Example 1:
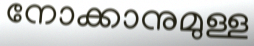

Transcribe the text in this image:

നോക്കാനുമുള്ള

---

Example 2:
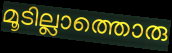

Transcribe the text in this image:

മൂടില്ലാത്തൊരു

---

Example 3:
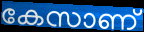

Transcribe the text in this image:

കേസാണ്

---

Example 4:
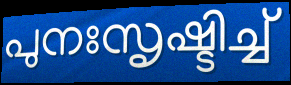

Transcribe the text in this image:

പുനഃസൃഷ്ടിച്ച്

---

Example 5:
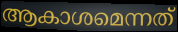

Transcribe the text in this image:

ആകാശമെന്നത്